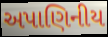
અપાણિનીય